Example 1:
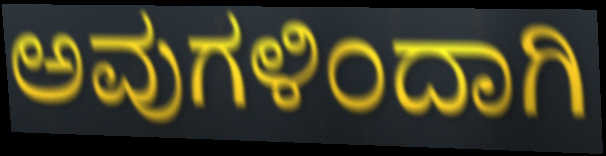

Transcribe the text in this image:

ಅವುಗಳಿಂದಾಗಿ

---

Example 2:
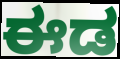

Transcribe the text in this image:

ಈಡ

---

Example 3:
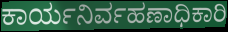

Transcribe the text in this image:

ಕಾರ್ಯನಿರ್ವಹಣಾಧಿಕಾರಿ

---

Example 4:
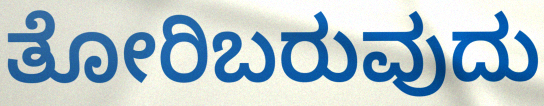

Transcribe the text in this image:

ತೋರಿಬರುವುದು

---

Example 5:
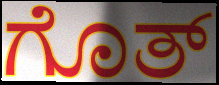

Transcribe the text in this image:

ಗೊತ್